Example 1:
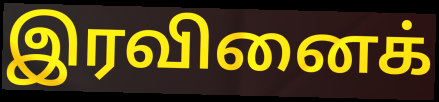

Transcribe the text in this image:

இரவினைக்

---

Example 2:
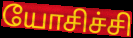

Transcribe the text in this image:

யோசிச்சி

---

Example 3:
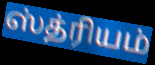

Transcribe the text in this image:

ஸ்த்ரியம்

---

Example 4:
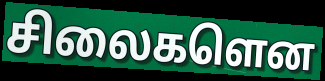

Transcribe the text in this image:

சிலைகளென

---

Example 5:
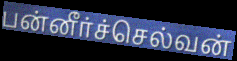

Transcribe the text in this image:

பன்னீர்ச்செல்வன்